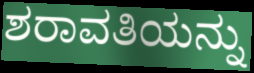
ಶರಾವತಿಯನ್ನು